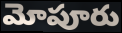
మోపూరు